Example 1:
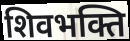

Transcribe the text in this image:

शिवभक्ति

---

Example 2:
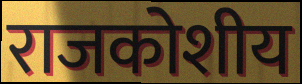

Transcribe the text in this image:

राजकोशीय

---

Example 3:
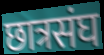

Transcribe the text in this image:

छात्रसंघ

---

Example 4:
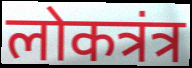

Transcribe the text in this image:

लोकत्रंत्र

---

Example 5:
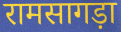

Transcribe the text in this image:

रामसागड़ा